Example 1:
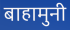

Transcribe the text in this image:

बाहामुनी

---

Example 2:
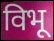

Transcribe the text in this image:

विभू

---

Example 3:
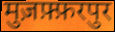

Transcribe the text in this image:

मुज़फ़्फ़रपुर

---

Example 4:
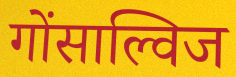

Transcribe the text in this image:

गोंसाल्विज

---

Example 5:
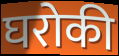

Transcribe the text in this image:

घरोकी